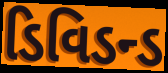
ડિવિડન્ડ